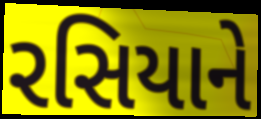
રસિયાને